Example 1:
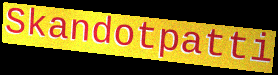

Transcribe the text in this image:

Skandotpatti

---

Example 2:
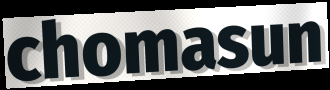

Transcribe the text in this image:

chomasun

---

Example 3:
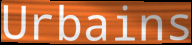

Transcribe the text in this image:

Urbains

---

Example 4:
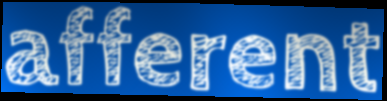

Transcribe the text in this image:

afferent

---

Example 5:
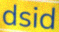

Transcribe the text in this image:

dsid